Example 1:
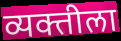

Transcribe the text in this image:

व्यक्तीला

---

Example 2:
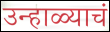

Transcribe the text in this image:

उन्हाळ्याचं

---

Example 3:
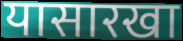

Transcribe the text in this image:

यासारखा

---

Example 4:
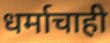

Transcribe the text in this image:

धर्माचाही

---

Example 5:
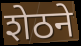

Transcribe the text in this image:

शेठने